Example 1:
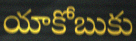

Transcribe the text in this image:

యాకోబుకు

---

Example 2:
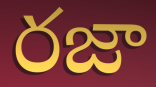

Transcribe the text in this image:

రజా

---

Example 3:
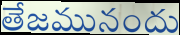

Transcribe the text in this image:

తేజమునందు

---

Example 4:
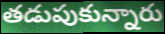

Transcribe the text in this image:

తడుపుకున్నారు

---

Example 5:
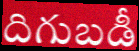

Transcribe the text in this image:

దిగుబడీ